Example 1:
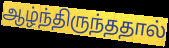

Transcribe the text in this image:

ஆழ்ந்திருந்ததால்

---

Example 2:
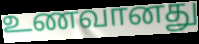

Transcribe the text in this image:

உணவானது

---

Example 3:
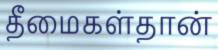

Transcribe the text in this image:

தீமைகள்தான்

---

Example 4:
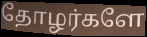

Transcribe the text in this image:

தோழர்களே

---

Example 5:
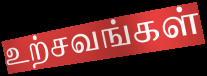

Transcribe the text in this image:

உற்சவங்கள்